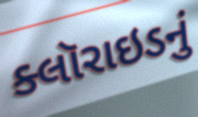
ક્લૉરાઇડનું